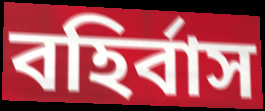
বহির্বাস